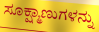
ಸೂಕ್ಷ್ಮಾಣುಗಳನ್ನು